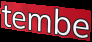
tembe